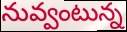
నువ్వంటున్న